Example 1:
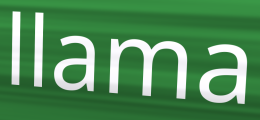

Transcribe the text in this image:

llama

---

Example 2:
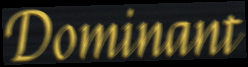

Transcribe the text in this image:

Dominant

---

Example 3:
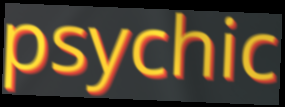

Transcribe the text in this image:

psychic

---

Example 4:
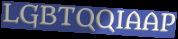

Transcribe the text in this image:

LGBTQQIAAP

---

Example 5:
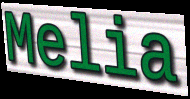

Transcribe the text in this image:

Melia